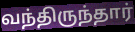
வந்திருந்தார்